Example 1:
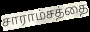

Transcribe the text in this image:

சாராம்சத்தை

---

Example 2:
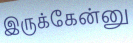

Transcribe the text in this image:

இருக்கேன்னு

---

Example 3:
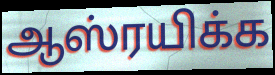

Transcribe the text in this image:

ஆஸ்ரயிக்க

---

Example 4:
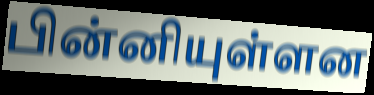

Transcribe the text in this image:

பின்னியுள்ளன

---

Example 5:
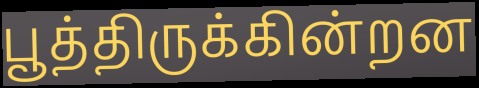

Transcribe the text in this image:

பூத்திருக்கின்றன